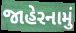
જાહેરનામું